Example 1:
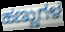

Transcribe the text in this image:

ಹಣ್ಣುಗಳ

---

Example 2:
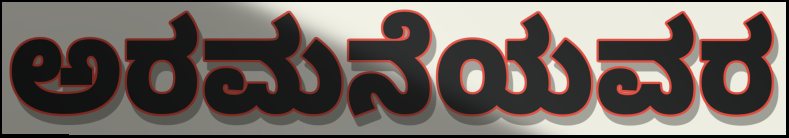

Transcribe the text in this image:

ಅರಮನೆಯವರ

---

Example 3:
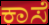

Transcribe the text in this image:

ಕಾಸೆ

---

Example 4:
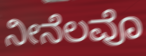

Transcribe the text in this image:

ನೀನೆಲವೊ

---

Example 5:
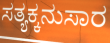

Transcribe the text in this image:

ಸತ್ಯಕ್ಕನುಸಾರ